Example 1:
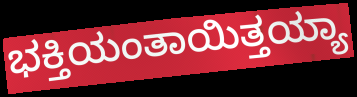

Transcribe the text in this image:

ಭಕ್ತಿಯಂತಾಯಿತ್ತಯ್ಯಾ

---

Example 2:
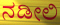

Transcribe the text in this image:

ನಡೀಲಿ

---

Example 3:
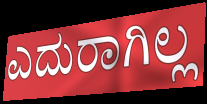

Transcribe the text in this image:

ಎದುರಾಗಿಲ್ಲ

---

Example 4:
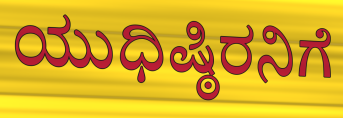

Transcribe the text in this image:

ಯುಧಿಷ್ಠಿರನಿಗೆ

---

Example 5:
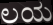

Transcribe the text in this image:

ಲಯ